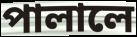
পালালে